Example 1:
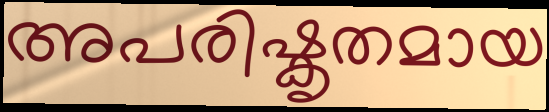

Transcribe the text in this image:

അപരിഷ്കൃതമായ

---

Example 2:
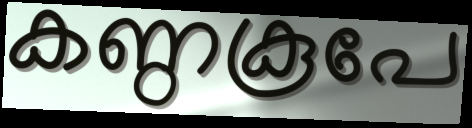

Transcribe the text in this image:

കണ്ഠകൂപേ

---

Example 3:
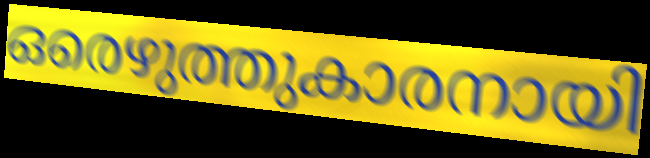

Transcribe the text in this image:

ഒരെഴുത്തുകാരനായി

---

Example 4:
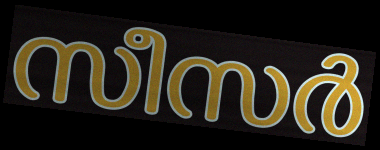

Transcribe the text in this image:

സീസർ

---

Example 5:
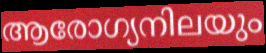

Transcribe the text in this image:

ആരോഗ്യനിലയും